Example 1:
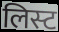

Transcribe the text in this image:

लिस्‍ट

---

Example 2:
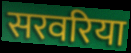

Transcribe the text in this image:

सरवरिया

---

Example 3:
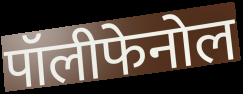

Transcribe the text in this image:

पॉलीफेनोल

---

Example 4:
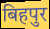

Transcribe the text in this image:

बिहपुर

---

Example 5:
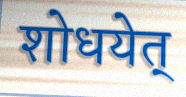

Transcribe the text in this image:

शोधयेत्